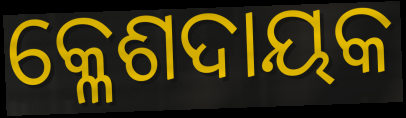
କ୍ଳେଶଦାୟକ